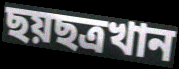
ছয়ছত্রখান